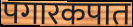
पगारकपात